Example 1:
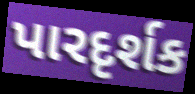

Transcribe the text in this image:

પારદૃર્શક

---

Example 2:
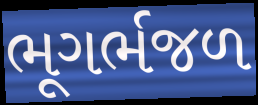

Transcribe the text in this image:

ભૂગર્ભજળ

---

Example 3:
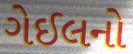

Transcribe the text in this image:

ગેઈલનો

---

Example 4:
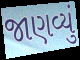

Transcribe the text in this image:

જાણવ્યું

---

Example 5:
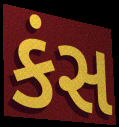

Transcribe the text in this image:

કંસ